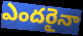
ఎందరైనా